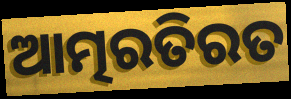
ଆତ୍ମରତିରତ